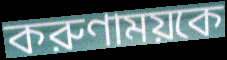
করুণাময়কে